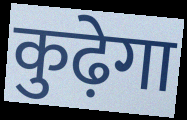
कुढ़ेगा